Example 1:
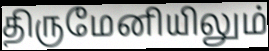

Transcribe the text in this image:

திருமேனியிலும்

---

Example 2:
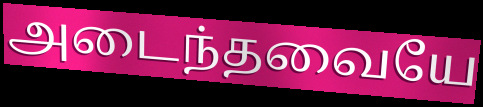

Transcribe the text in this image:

அடைந்தவையே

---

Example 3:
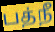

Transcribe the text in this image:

பத்நீ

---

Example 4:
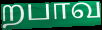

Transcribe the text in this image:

றபாவ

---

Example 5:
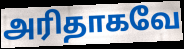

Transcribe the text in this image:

அரிதாகவே